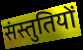
संस्तुतियों